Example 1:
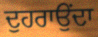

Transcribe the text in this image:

ਦੁਹਰਾਉਂਦਾ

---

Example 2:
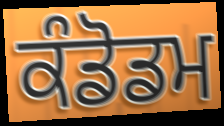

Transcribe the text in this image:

ਕੰਡੋਡਮ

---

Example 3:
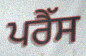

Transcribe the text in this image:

ਪਰੈੱਸ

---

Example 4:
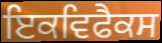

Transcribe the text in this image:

ਇਕਵਿਫੈਕਸ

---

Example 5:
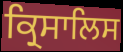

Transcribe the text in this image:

ਕ੍ਰਿਸਾਲਿਸ